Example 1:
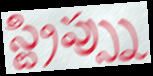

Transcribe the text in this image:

స్ట్రిప్స్ను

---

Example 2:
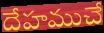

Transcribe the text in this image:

దేహముచే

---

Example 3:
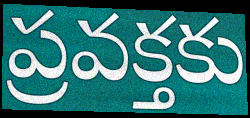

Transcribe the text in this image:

ప్రవక్తకు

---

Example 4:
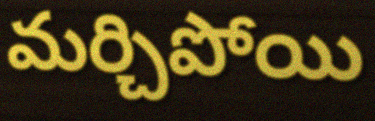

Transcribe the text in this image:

మర్చిపోయి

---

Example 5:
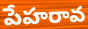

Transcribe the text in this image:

పేహరావ